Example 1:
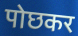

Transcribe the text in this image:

पोछकर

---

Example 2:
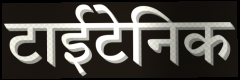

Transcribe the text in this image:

टाईटेनिक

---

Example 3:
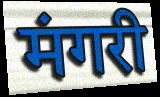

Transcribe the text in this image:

मंगरी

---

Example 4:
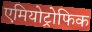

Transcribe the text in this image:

एमियोट्रोफिक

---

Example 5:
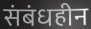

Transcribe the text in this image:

संबंधहीन